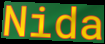
Nida